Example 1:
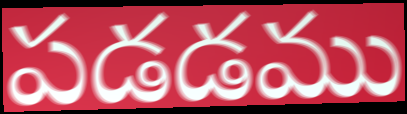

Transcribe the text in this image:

పడడము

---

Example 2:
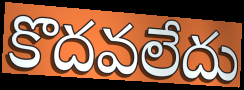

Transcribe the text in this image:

కొదవలేదు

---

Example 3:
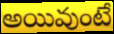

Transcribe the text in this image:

అయివుంటే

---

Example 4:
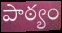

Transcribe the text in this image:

పాఠ్యం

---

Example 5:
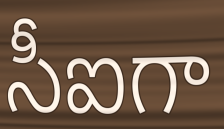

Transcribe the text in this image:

సీఐగా